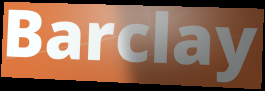
Barclay